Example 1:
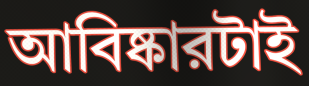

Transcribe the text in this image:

আবিষ্কারটাই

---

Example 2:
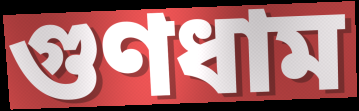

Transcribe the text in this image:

গুণধাম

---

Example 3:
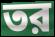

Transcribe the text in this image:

তর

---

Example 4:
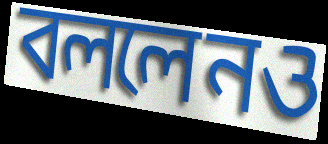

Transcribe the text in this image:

বললেনও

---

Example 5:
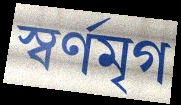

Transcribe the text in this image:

স্বর্ণমৃগ